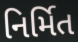
નિર્મિત